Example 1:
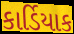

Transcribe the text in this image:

કાર્ડિયાક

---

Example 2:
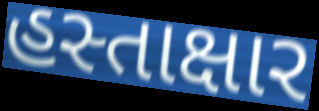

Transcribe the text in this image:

હસ્તાક્ષાર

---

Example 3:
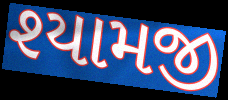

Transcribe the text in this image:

શ્યામજી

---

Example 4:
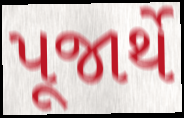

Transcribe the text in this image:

પૂજાર્થે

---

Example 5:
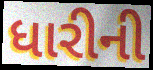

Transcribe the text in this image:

ધારીની